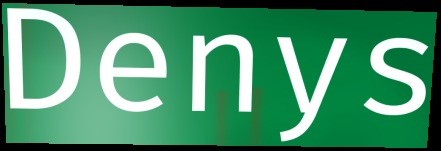
Denys